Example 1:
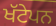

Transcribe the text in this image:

ਖੱਟੇਪਨ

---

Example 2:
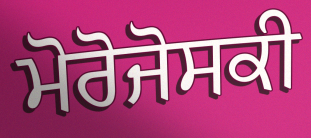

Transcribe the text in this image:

ਮੋਰੋਜੋਸਕੀ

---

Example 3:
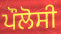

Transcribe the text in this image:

ਪੌਲੋਸੀ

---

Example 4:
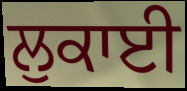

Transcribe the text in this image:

ਲੁਕਾਈ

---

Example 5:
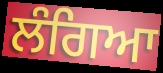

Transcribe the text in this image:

ਲੰਗਿਆ